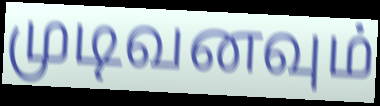
முடிவனவும்